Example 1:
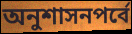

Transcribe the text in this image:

অনুশাসনপর্বে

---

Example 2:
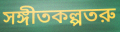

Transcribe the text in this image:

সঙ্গীতকল্পতরু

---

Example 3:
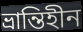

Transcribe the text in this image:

ভ্রান্তিহীন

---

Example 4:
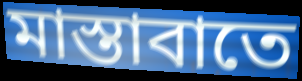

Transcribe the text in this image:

মাস্তাবাতে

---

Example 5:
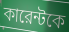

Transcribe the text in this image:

কারেন্টকে